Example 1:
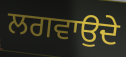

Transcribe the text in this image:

ਲਗਵਾਉਦੇ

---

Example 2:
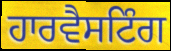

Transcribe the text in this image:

ਹਾਰਵੈਸਟਿੰਗ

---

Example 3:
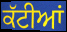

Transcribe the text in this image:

ਕੱਟੀਆਂ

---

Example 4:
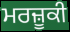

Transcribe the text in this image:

ਮਰਜ਼ੂਕੀ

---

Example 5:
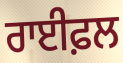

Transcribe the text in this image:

ਰਾਈਫ਼ਲ